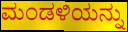
ಮಂಡಳಿಯನ್ನು